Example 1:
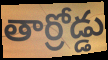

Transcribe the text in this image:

తార్రోడ్డు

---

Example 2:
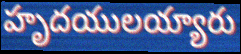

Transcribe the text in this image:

హృదయులయ్యారు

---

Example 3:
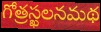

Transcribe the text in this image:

గోత్రస్ఖలనమథ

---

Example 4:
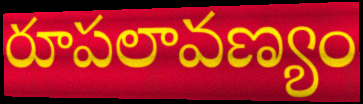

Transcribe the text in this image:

రూపలావణ్యం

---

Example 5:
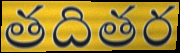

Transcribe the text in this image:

తదితర